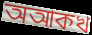
অআকখ